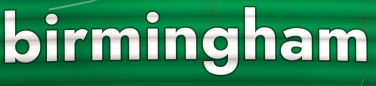
birmingham